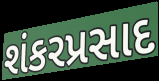
શંકરપ્રસાદ